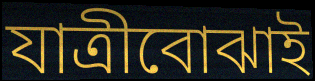
যাত্রীবোঝাই